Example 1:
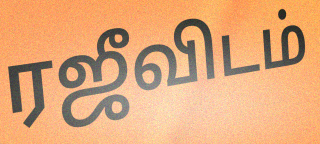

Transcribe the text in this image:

ரஜீவிடம்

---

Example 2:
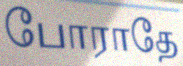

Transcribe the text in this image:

போராதே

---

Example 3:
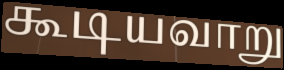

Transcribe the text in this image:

கூடியவாறு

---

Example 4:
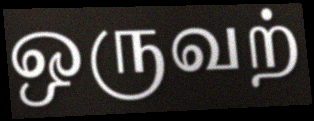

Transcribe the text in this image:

ஒருவற்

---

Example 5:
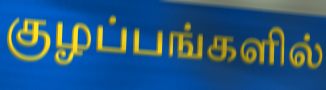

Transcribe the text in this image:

குழப்பங்களில்